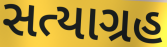
સત્યાગ્રહ